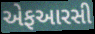
એફઆરસી